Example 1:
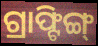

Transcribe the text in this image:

ଗ୍ରାଫ୍ଟିଙ୍ଗ୍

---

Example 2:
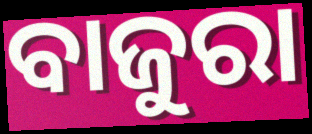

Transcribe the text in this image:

ବାଜୁରା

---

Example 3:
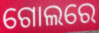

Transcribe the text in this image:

ଗୋଲରେ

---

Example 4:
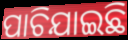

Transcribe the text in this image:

ପାଚିଯାଇଛି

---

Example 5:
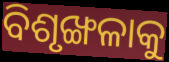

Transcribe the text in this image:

ବିଶୃଙ୍ଖଳାକୁ